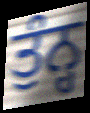
ਤੁੰਨ੍ਹ